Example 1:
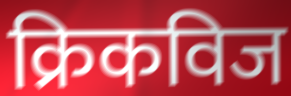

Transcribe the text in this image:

क्रिकविज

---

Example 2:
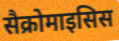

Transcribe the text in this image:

सैक्रोमाइसिस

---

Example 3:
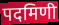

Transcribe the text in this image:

पदमिणी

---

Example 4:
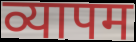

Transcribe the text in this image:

व्यापम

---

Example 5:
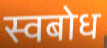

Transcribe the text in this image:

स्वबोध